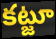
కట్జూ